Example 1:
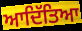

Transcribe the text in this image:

ਆਦਿੱਤਿਆ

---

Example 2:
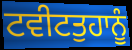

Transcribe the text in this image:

ਟਵੀਟਤੁਹਾਨੂੰ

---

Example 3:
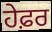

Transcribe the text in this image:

ਹੇਫ਼ਰ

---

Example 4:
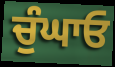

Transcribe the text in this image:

ਚੁੰਘਾਓ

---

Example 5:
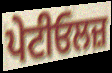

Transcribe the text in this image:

ਪੇਟੀਓਲਜ਼